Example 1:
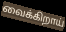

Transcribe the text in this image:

வைக்கிறாய்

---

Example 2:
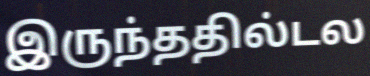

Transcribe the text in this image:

இருந்ததில்டல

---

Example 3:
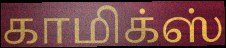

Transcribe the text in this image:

காமிக்ஸ்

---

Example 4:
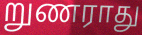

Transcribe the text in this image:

றுணராது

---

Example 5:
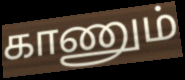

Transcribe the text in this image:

காணும்